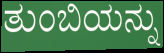
ತುಂಬಿಯನ್ನು